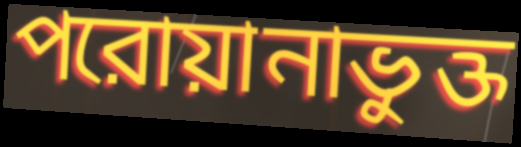
পরোয়ানাভুক্ত